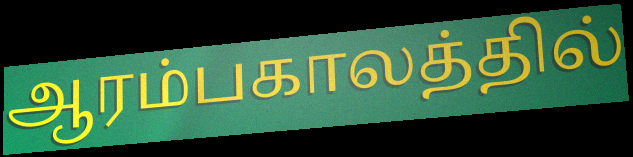
ஆரம்பகாலத்தில்